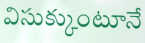
విసుక్కుంటూనే